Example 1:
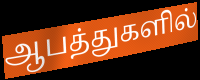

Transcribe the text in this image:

ஆபத்துகளில்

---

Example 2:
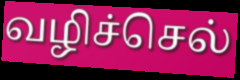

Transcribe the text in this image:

வழிச்செல்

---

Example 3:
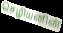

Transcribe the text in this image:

செழியனின்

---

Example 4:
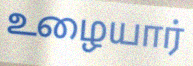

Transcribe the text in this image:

உழையார்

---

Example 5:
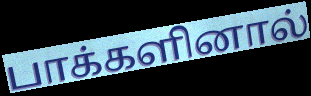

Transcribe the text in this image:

பாக்களினால்